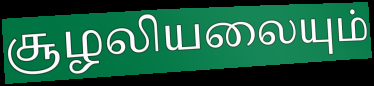
சூழலியலையும்